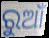
ରୁଆଁ